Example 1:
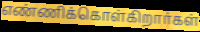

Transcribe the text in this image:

எண்ணிக்கொள்கிறார்கள்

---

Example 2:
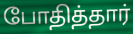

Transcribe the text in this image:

போதித்தார்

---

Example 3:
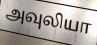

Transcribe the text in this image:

அவுலியா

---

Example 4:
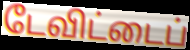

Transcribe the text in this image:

டேவிட்டைப்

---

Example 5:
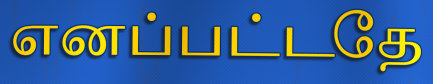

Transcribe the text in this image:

எனப்பட்டதே